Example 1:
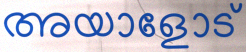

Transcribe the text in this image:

അയാളോട്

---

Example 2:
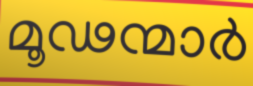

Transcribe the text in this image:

മൂഢന്മാർ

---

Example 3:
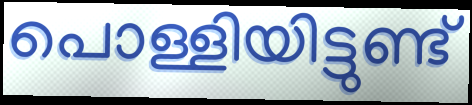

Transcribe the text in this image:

പൊള്ളിയിട്ടുണ്ട്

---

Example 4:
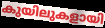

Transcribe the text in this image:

കുയിലുകളായി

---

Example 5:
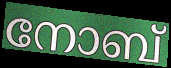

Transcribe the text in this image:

നോബ്